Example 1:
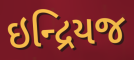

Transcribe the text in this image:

ઇન્દ્રિયજ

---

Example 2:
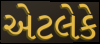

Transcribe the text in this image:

એટલેકે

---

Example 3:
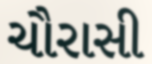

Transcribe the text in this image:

ચૌરાસી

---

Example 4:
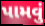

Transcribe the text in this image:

પામવું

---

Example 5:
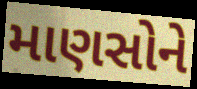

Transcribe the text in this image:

માણસોને